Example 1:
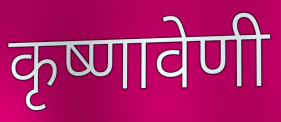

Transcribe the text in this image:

कृष्णावेणी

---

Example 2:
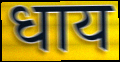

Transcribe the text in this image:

धाय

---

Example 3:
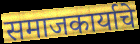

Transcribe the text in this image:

समाजकार्याचे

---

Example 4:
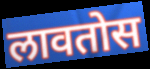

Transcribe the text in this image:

लावतोस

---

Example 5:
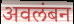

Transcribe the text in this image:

अवलंबन